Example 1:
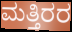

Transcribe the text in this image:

ಮತ್ತಿರರ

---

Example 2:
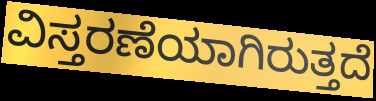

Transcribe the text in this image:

ವಿಸ್ತರಣೆಯಾಗಿರುತ್ತದೆ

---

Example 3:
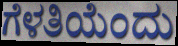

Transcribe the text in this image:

ಗೆಳತಿಯೆಂದು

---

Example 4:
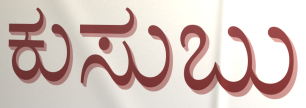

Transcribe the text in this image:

ಕುಸುಬು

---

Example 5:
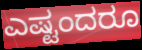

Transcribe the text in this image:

ಎಷ್ಟಂದರೂ